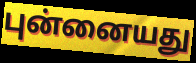
புன்னையது